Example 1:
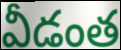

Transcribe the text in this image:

వీడంత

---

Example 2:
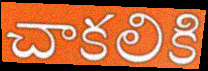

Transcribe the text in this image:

చాకలికి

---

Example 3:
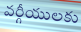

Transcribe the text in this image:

వర్గీయులకు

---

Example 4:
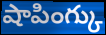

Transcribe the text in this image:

షాపింగ్కు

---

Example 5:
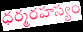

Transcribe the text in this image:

ధర్మరహస్యం